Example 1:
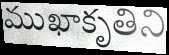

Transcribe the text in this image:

ముఖాకృతిని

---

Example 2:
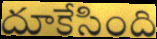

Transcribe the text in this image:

దూకేసింది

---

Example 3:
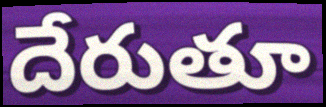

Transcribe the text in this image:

దేరుతూ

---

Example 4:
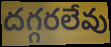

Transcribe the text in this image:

దగ్గరలేవు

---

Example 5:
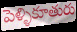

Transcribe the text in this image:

పెళ్ళికూతురు